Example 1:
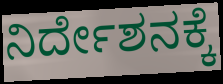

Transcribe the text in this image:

ನಿರ್ದೇಶನಕ್ಕೆ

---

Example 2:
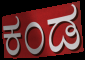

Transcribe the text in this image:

ಕಂಡ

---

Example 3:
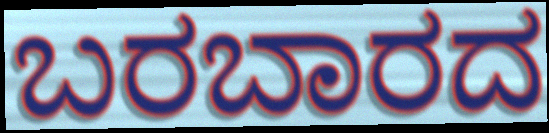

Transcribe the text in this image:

ಬರಬಾರದ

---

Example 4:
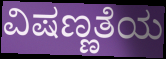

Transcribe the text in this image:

ವಿಷಣ್ಣತೆಯ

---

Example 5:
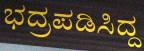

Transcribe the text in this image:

ಭದ್ರಪಡಿಸಿದ್ದ